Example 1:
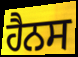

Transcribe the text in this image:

ਹੈਨਸ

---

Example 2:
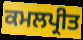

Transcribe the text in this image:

ਕਮਲਪ੍ਰੀਤ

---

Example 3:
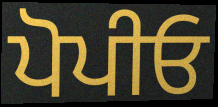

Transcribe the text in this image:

ਪੋਪੀਓ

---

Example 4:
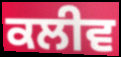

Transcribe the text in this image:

ਕਲੀਵ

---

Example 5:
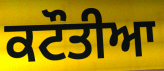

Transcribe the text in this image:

ਕਟੌਤੀਆ